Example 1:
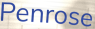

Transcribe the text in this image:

Penrose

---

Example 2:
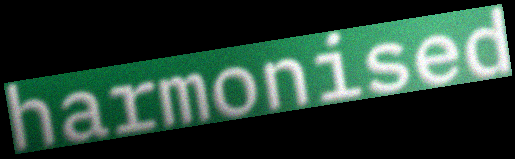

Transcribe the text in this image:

harmonised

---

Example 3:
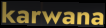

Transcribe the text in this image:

karwana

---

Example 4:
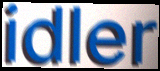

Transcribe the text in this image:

idler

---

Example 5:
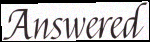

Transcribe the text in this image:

Answered